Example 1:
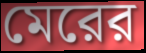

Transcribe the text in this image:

মেরের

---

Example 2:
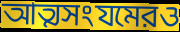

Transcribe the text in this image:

আত্মসংযমেরও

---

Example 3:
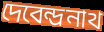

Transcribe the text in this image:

দেবেন্দ্রনাথ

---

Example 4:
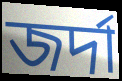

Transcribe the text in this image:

জর্দা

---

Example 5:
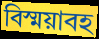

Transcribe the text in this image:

বিস্ময়াবহ